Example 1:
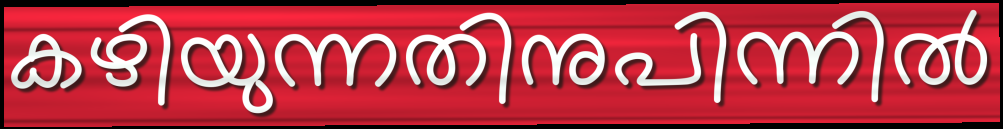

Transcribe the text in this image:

കഴിയുന്നതിനുപിന്നിൽ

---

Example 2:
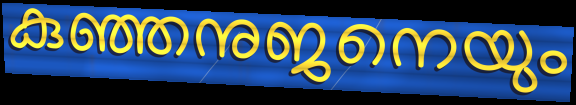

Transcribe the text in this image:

കുഞ്ഞനുജനെയും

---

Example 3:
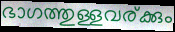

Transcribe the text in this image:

ഭാഗത്തുള്ളവര്ക്കും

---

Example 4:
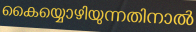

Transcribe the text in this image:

കൈയ്യൊഴിയുന്നതിനാൽ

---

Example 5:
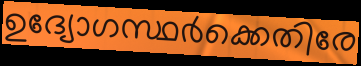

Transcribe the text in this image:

ഉദ്യോഗസ്ഥർക്കെതിരേ